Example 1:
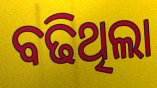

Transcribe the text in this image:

ବଢିଥିଲା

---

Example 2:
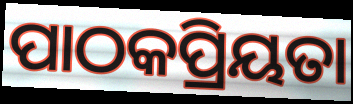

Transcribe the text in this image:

ପାଠକପ୍ରିୟତା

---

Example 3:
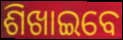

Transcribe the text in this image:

ଶିଖାଇବେ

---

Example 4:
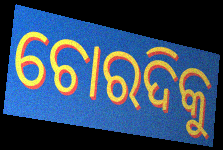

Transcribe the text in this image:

ଚୋରଦିକୁ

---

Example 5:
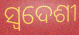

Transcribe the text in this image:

ସ୍ୱଦେଶୀ